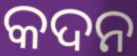
କଦନ